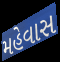
મહેવાસ